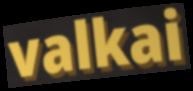
valkai